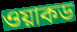
ওয়াকড